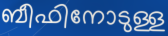
ബീഫിനോടുള്ള